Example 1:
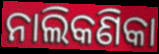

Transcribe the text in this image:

ନାଲିକଣିକା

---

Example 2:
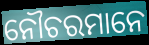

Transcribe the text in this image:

ନୌଚରମାନେ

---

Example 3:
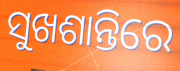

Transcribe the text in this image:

ସୁଖଶାନ୍ତିରେ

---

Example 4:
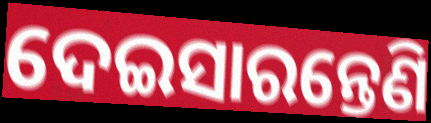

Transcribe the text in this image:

ଦେଇସାରନ୍ତେଣି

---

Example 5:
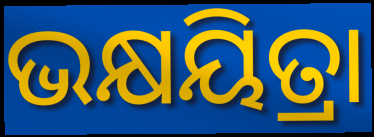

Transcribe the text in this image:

ଭକ୍ଷୟିତ୍ରା